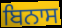
ਬਿਨਾਸ